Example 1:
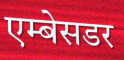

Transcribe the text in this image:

एम्बेसडर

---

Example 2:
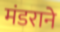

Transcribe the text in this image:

मंडराने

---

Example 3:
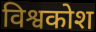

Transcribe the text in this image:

विश्वकोश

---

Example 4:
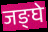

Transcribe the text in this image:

जङ्घे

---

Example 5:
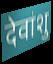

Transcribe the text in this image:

देवांशु